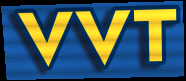
VVT